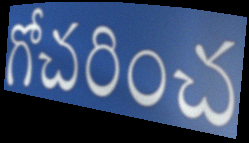
గోచరించ